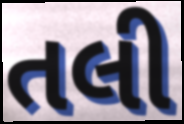
તલી